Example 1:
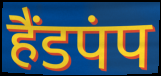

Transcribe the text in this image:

हैंडपंप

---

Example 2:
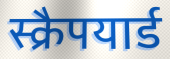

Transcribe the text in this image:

स्क्रैपयार्ड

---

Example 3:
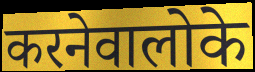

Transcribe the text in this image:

करनेवालोके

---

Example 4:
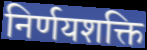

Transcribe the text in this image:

निर्णयशक्ति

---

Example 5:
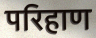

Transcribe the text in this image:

परिहाण